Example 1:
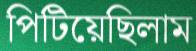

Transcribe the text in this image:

পিটিয়েছিলাম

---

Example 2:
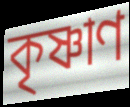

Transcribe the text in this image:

কৃষ্ণাণ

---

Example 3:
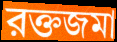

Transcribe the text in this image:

রক্তজমা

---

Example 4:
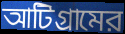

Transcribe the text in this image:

আটিগ্রামের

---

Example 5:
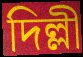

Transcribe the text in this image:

দিল্লী